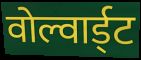
वोल्वार्ड्ट